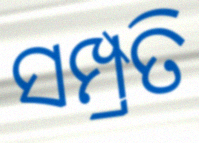
ସମ୍ପ୍ରତି